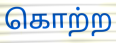
கொற்ற